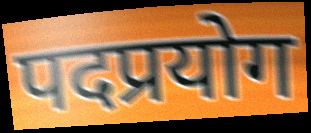
पदप्रयोग